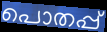
പൊതപ്പ്